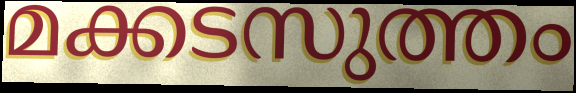
മക്കടസുത്തം